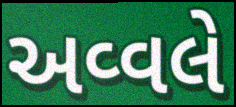
અવ્વલે